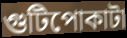
গুটিপোকাটা